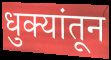
धुक्यांतून